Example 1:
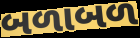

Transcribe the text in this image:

બળાબળ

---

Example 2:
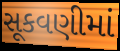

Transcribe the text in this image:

સૂકવણીમાં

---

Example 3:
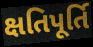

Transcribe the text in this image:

ક્ષતિપૂર્તિ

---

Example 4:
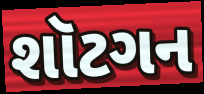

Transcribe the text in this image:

શૉટગન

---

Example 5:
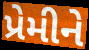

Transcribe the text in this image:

પ્રેમીને